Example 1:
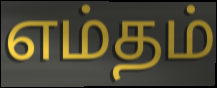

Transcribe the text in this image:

எம்தம்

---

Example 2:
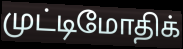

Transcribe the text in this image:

முட்டிமோதிக்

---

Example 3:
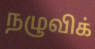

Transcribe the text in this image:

நழுவிக்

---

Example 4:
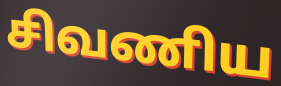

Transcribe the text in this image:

சிவணிய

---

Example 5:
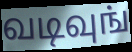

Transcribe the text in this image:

வடிவுங்